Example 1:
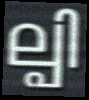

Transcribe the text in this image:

ല്പി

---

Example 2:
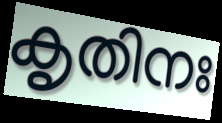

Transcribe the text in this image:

കൃതിനഃ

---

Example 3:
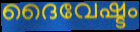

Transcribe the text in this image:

ദൈവേഷ്ടം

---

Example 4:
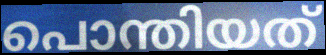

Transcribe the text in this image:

പൊന്തിയത്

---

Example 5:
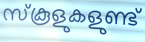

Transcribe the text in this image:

സ്കൂളുകളുണ്ട്